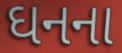
ઘનના